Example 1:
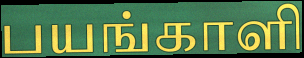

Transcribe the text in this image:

பயங்காளி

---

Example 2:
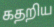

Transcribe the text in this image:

கதறிய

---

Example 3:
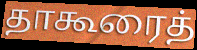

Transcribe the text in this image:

தாகூரைத்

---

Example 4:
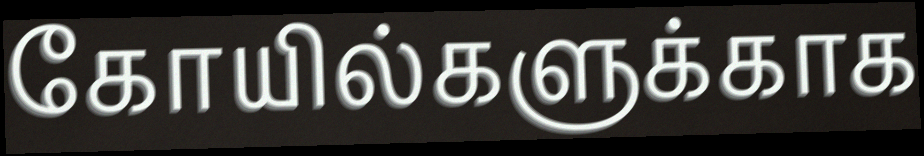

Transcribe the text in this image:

கோயில்களுக்காக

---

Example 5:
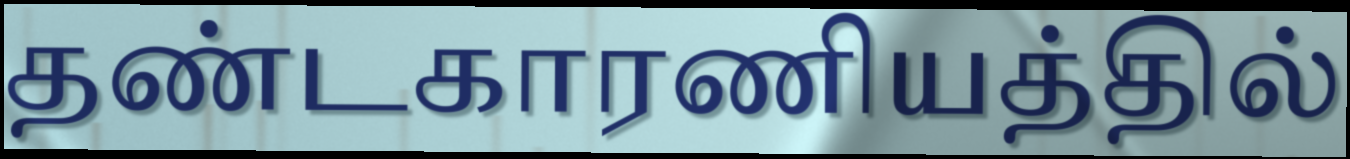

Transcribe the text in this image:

தண்டகாரணியத்தில்